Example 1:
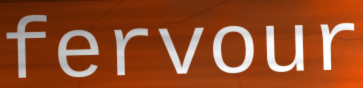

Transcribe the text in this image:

fervour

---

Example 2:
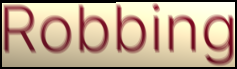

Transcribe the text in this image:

Robbing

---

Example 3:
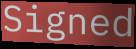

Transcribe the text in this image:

Signed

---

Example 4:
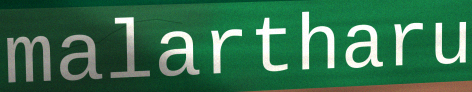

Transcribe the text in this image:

malartharu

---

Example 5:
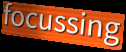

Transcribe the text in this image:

focussing